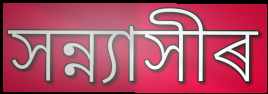
সন্ন্যাসীৰ